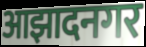
आझादनगर